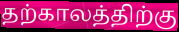
தற்காலத்திற்கு